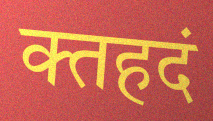
क्तहदं